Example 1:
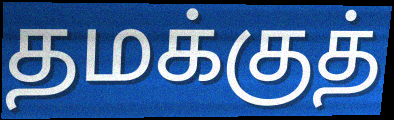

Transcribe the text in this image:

தமக்குத்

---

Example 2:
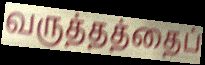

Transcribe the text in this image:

வருத்தத்தைப்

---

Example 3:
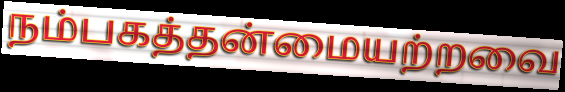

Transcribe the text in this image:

நம்பகத்தன்மையற்றவை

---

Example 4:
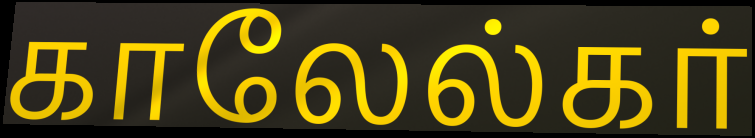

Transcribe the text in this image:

காலேல்கர்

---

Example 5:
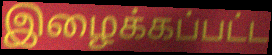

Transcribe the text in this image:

இழைக்கப்பட்ட